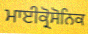
ਮਾਈਕ੍ਰੋਸੋਨਿਕ